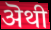
ऄथी